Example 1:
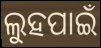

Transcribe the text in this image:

ଲୁହପାଇଁ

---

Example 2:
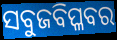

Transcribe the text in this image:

ସବୁଜବିପ୍ଳବର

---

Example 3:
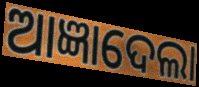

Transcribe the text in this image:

ଆଜ୍ଞାଦେଲା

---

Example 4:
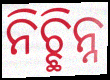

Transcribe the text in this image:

ନିଚ୍ଛିନ୍ନ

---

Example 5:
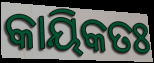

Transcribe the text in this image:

କାୟିକତଃ